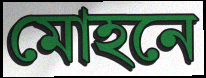
মোহনে